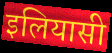
इलियासी